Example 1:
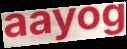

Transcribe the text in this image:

aayog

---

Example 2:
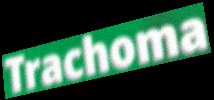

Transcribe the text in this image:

Trachoma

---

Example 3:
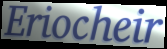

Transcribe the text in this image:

Eriocheir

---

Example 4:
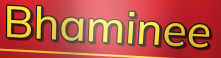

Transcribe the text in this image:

Bhaminee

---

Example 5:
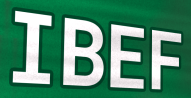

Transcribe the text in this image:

IBEF